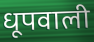
धूपवाली